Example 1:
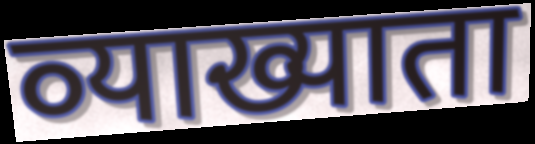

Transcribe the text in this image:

व्‍याख्‍याता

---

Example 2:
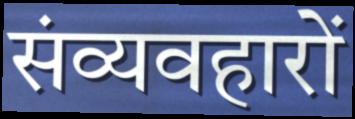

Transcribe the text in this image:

संव्‍यवहारों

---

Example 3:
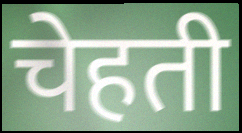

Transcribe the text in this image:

चेहती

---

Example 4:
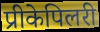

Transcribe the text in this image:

प्रीकेपिलरी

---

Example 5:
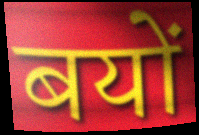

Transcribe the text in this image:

बयों